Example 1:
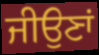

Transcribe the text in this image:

ਜੀਉਣਾਂ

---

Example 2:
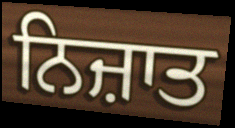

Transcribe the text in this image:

ਨਿਜ਼ਾਤ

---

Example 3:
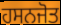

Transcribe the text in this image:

ਹਸਨਜੋਤ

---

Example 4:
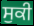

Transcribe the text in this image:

ਸੁਕੀ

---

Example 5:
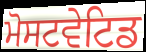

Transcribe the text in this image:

ਮੋਸਟਵੇਟਿਡ